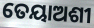
ତେୟାଅଶୀ